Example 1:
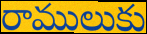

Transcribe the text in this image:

రాములుకు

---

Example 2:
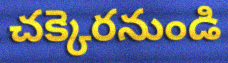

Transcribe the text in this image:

చక్కెరనుండి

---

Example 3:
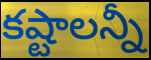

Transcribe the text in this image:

కష్టాలన్నీ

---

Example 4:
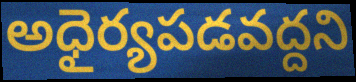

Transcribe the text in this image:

అధైర్యపడవద్దని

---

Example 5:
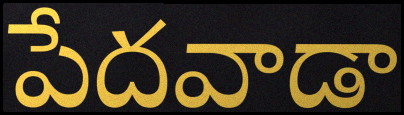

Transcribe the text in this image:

పేదవాడా